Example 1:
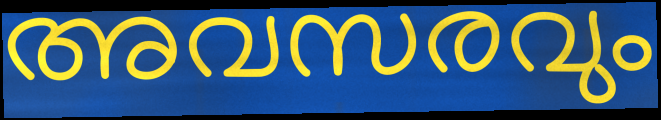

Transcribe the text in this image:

അവസരവും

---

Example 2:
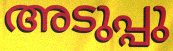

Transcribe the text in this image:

അടുപ്പു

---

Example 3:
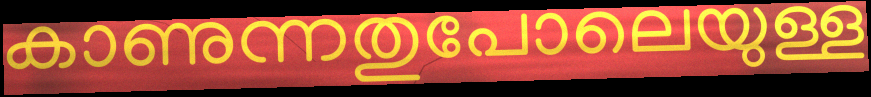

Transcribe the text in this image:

കാണുന്നതുപോലെയുള്ള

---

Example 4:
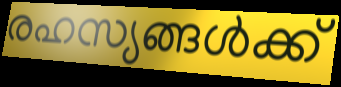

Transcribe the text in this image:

രഹസ്യങ്ങൾക്ക്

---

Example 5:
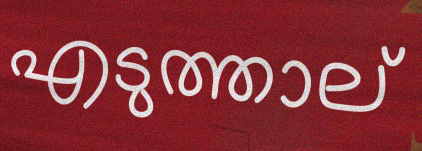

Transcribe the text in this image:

എടുത്താല്